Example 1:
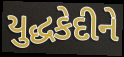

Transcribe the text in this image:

યુદ્ધકેદીને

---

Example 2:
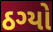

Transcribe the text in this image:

ઠગ્યો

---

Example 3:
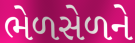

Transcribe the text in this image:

ભેળસેળને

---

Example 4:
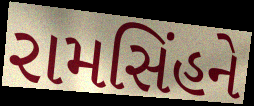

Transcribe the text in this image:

રામસિંહને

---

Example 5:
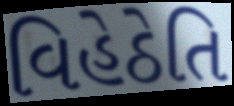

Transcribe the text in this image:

વિહેઠેતિ